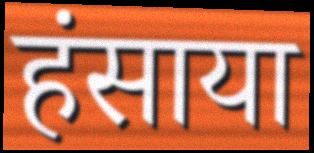
हंसाया